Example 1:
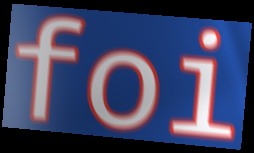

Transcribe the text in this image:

foi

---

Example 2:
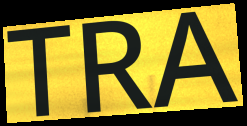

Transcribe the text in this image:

TRA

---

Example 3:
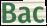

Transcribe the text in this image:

Bac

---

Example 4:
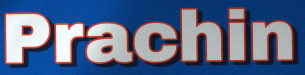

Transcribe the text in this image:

Prachin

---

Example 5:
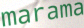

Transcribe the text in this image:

marama